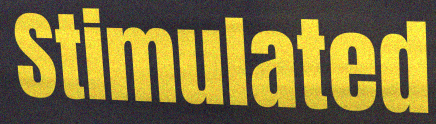
Stimulated